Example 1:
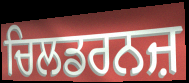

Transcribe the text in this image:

ਚਿਲਡਰਨਜ਼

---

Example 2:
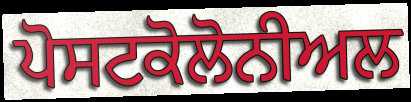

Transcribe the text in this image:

ਪੋਸਟਕੋਲੋਨੀਅਲ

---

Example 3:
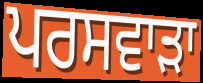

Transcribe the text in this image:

ਪਰਸਵਾੜਾ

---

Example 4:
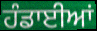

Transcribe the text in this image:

ਹੰਡਾਈਆਂ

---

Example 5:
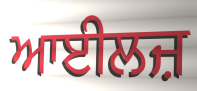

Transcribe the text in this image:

ਆਈਲਜ਼